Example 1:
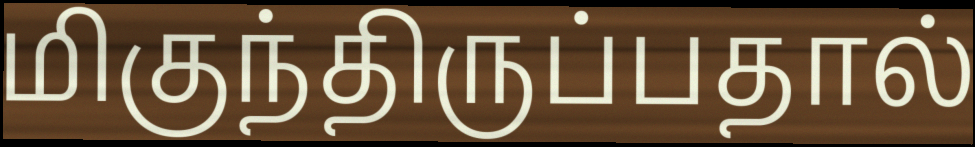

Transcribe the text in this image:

மிகுந்திருப்பதால்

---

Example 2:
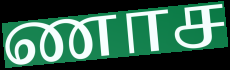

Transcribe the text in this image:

ணாச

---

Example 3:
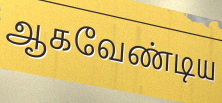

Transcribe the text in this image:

ஆகவேண்டிய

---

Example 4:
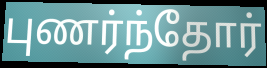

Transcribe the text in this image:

புணர்ந்தோர்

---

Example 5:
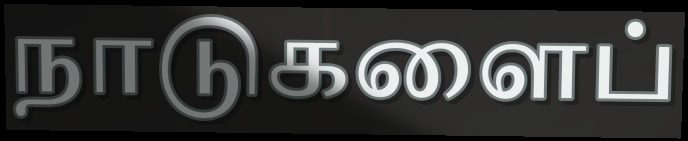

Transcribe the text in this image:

நாடுகளைப்